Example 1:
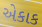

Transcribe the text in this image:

એકાક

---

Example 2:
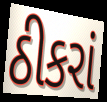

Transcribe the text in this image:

ઠીકરાં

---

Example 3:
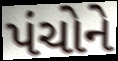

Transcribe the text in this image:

પંચોને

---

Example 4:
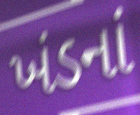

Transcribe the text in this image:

ખંડનાં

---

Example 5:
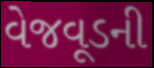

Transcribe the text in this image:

વેજવૂડની